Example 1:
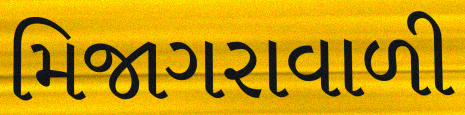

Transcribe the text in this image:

મિજાગરાવાળી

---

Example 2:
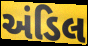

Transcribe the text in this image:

અંડિલ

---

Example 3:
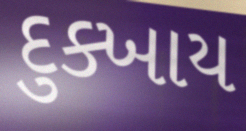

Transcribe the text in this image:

દુક્ખાય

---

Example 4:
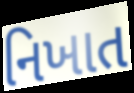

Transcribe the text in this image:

નિખાત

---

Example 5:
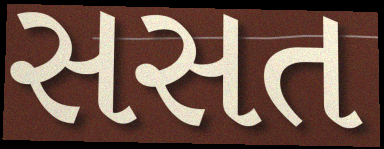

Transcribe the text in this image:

સસત